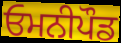
ਓਮਨੀਪੌਡ